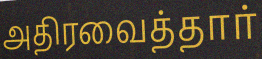
அதிரவைத்தார்